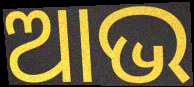
ଆଭ